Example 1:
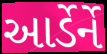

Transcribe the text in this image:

આર્ડેર્ને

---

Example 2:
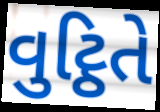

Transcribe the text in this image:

વુટ્ઠિતે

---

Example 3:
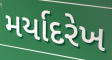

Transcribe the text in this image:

મર્યાદરેખ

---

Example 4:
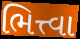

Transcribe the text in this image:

ભિત્ત્વા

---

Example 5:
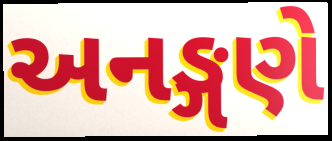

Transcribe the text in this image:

અનઙ્ગણે